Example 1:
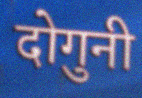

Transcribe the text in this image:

दोगुनी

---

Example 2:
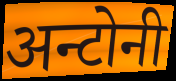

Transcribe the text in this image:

अन्टोनी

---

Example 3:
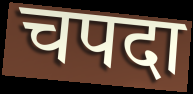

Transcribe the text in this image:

चपदा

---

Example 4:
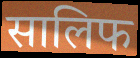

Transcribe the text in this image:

सालिफ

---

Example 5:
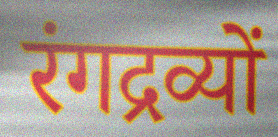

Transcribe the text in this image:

रंगद्रव्यों